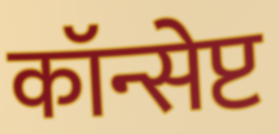
कॉन्सेप्ट